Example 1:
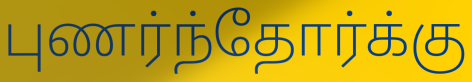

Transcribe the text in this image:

புணர்ந்தோர்க்கு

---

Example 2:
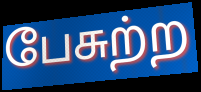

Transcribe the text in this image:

பேசுற்ற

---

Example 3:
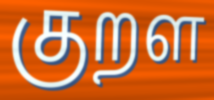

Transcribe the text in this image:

குறள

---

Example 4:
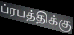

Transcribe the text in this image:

ப்ரபத்திக்கு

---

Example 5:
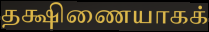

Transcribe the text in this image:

தக்ஷிணையாகக்